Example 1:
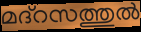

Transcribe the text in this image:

മദ്റസത്തുൽ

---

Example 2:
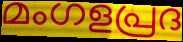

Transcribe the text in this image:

മംഗളപ്രദ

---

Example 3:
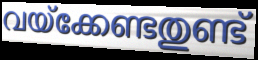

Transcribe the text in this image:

വയ്‌ക്കേണ്ടതുണ്ട്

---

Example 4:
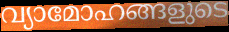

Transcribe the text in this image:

വ്യാമോഹങ്ങളുടെ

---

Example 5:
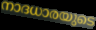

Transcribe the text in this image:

നാദധാരയുടെ